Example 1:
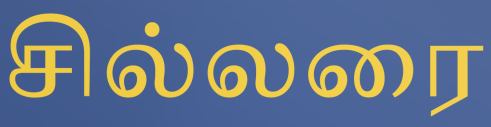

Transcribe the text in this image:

சில்லரை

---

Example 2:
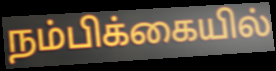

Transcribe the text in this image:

நம்பிக்கையில்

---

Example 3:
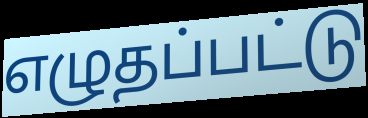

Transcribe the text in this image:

எழுதப்பட்டு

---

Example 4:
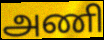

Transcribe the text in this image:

அணி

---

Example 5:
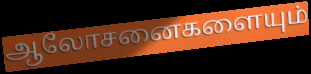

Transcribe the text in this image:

ஆலோசனைகளையும்